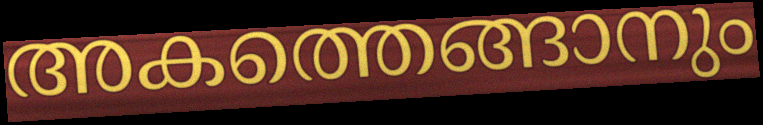
അകത്തെങ്ങാനും